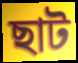
ছাট